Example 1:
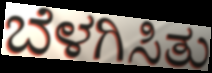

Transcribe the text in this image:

ಬೆಳಗಿಸಿತು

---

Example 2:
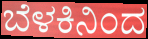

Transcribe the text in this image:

ಬೆಳಕಿನಿಂದ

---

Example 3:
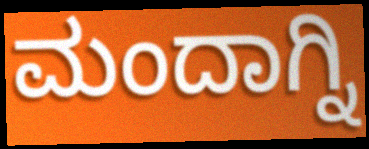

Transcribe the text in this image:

ಮಂದಾಗ್ನಿ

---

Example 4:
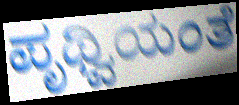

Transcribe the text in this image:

ಪೃಥ್ವಿಯಂತೆ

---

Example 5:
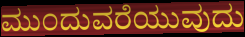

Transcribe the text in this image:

ಮುಂದುವರೆಯುವುದು